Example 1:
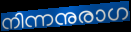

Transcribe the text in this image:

നിന്നനുരാഗ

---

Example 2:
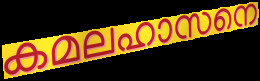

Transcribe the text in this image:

കമലഹാസനെ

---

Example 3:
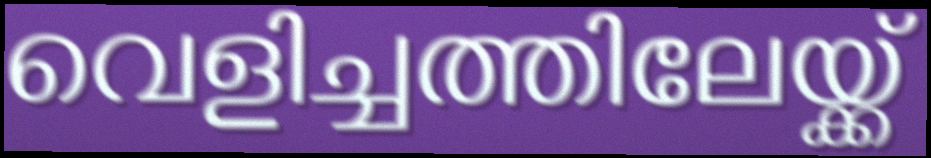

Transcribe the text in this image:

വെളിച്ചത്തിലേയ്ക്ക്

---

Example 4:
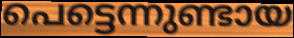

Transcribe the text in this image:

പെട്ടെന്നുണ്ടായ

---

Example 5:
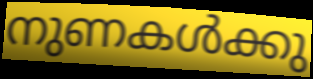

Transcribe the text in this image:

നുണകൾക്കു